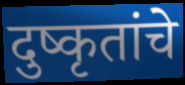
दुष्कृतांचे